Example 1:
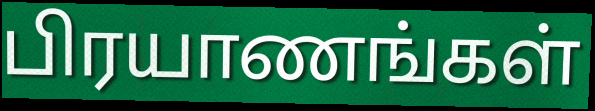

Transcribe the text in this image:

பிரயாணங்கள்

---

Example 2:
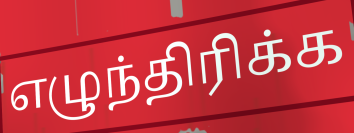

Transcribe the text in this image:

எழுந்திரிக்க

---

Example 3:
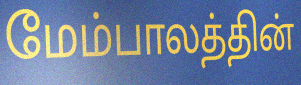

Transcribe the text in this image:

மேம்பாலத்தின்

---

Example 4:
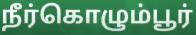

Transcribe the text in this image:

நீர்கொழும்பூர்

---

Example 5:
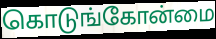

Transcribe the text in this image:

கொடுங்கோன்மை